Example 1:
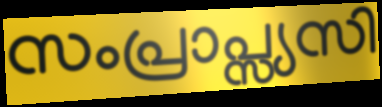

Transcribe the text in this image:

സംപ്രാപ്സ്യസി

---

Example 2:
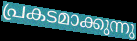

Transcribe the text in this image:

പ്രകടമാക്കുന്നു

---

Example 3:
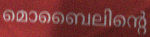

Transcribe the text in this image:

മൊബൈലിന്റെ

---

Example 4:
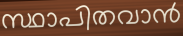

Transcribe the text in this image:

സ്ഥാപിതവാൻ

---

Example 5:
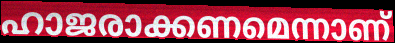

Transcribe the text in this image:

ഹാജരാക്കണമെന്നാണ്